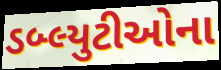
ડબ્લ્યુટીઓના